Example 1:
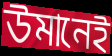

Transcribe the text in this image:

উমানেই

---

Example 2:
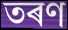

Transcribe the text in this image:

তৰণ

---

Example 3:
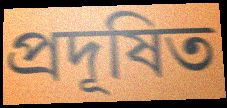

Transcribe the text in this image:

প্ৰদূষিত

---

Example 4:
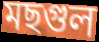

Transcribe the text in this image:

মছগুল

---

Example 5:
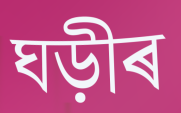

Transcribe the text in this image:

ঘড়ীৰ